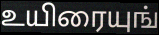
உயிரையுங்